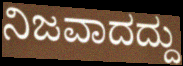
ನಿಜವಾದದ್ದು